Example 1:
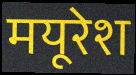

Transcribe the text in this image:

मयूरेश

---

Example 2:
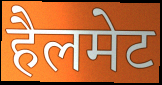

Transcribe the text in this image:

हैलमेट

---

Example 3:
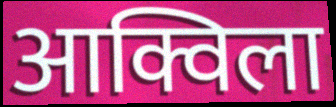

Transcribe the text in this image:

आक्विला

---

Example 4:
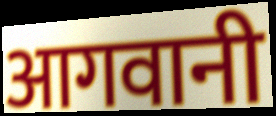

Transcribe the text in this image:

आगवानी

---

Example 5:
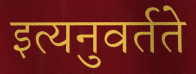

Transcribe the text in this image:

इत्यनुवर्तते